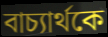
বাচ্যার্থকে